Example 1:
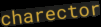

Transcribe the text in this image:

charector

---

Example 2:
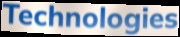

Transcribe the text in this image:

Technologies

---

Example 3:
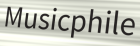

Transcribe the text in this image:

Musicphile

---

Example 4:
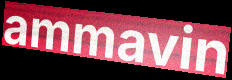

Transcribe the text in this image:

ammavin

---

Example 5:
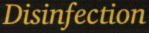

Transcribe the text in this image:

Disinfection